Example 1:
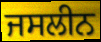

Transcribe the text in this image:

ਜਸਲੀਨ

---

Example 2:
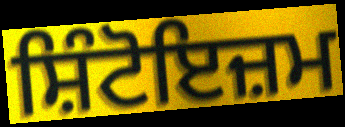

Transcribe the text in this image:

ਸ਼ਿੰਟੋਇਜ਼ਮ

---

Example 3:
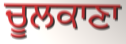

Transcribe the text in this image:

ਚੂਲਕਾਣਾ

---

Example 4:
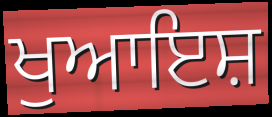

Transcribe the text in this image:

ਖੁਆਇਸ਼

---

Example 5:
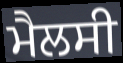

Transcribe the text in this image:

ਮੈਲਸੀ